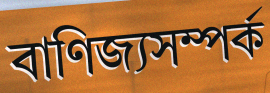
বাণিজ্যসম্পর্ক